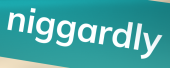
niggardly